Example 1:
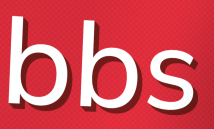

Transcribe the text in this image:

bbs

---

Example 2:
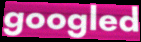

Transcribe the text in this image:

googled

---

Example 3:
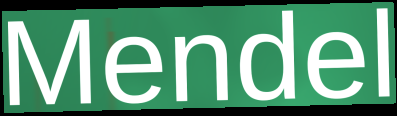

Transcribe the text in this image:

Mendel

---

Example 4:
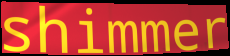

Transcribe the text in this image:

shimmer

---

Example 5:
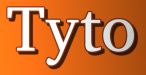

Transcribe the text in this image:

Tyto